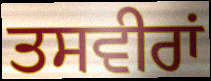
ਤਸਵੀਰਾਂ